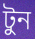
টুন